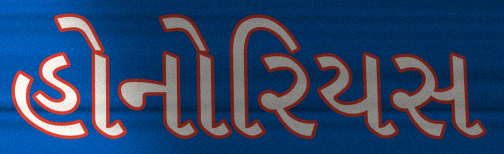
હોનોરિયસ